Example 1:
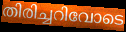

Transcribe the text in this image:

തിരിച്ചറിവോടെ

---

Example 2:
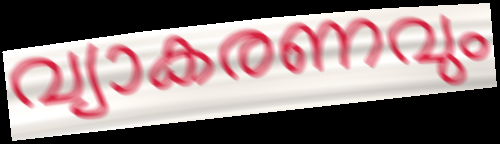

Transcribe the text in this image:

വ്യാകരണവും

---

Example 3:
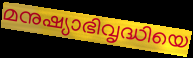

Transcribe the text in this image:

മനുഷ്യാഭിവൃദ്ധിയെ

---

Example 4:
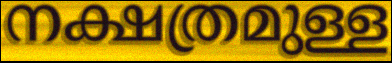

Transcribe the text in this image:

നക്ഷത്രമുള്ള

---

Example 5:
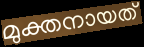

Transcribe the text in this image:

മുക്തനായത്